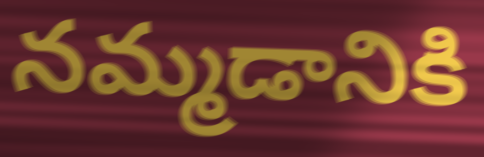
నమ్మడానికి